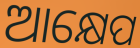
ଆକ୍ଷେପ